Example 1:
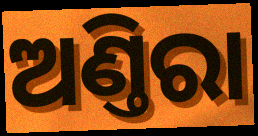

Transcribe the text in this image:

ଅଣ୍ତିରା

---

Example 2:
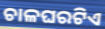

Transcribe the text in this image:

ଚାଳଘରଟିଏ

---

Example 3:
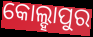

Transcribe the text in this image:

କୋଲ୍ହାପୁର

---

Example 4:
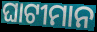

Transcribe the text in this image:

ଘାଟୀମାନ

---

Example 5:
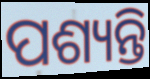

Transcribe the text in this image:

ପଶ୍ୟନ୍ତି